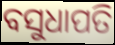
ବସୁଧାପତି